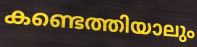
കണ്ടെത്തിയാലും